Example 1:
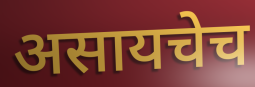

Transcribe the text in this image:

असायचेच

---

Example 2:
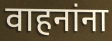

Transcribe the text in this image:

वाहनांना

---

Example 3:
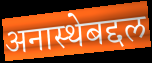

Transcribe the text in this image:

अनास्थेबद्दल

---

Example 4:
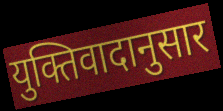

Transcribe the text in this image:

युक्तिवादानुसार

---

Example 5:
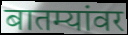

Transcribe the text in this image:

बातम्यांवर